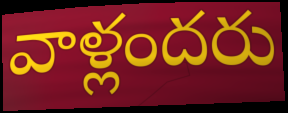
వాళ్లందరు